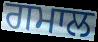
ਗਮਾਲ